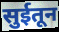
सुईतून